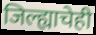
जिल्ह्याचेही